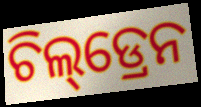
ଚିଲ୍‌ଡ୍ରେନ